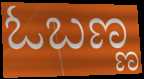
ಓಬಣ್ಣ